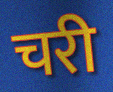
चरी